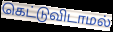
கெட்டுவிடாமல்